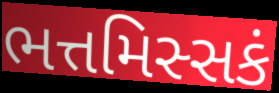
ભત્તમિસ્સકં